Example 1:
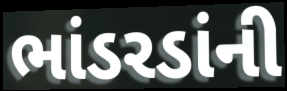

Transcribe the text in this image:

ભાંડરડાંની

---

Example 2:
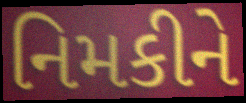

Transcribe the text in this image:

નિમકીને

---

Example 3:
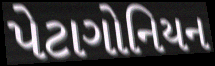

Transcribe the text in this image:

પેટાગોનિયન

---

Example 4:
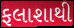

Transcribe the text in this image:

ફલાશાથી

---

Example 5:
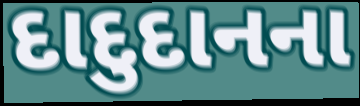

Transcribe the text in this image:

દાદુદાનના